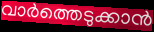
വാർത്തെടുക്കാൻ